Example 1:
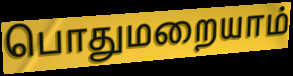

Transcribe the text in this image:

பொதுமறையாம்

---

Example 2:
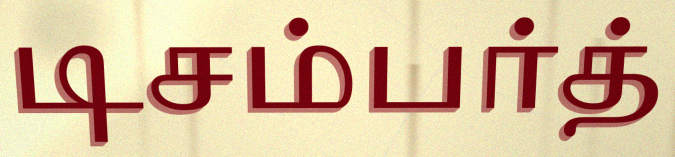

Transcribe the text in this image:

டிசம்பர்த்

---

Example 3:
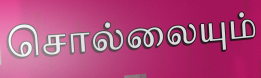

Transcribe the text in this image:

சொல்லையும்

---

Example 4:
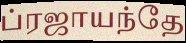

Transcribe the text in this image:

ப்ரஜாயந்தே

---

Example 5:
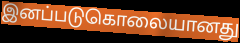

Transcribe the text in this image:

இனப்படுகொலையானது